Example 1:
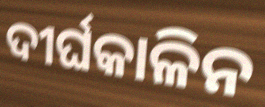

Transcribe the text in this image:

ଦୀର୍ଘକାଳିନ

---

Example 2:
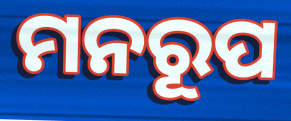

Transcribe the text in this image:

ମନରୂପ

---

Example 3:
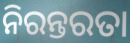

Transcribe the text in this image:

ନିରନ୍ତରତା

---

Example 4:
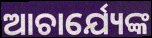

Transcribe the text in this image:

ଆଚାର୍ଯ୍ୟେଙ୍କ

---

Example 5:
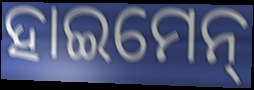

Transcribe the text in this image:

ହାଇମେନ୍